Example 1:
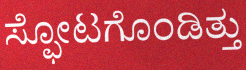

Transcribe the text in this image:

ಸ್ಫೋಟಗೊಂಡಿತ್ತು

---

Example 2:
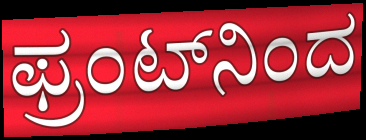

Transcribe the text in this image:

ಫ್ರಂಟ್‌ನಿಂದ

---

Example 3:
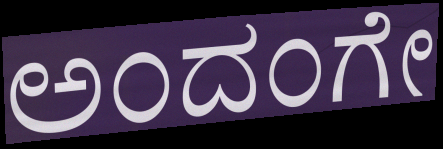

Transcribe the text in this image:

ಅಂದಂಗೇ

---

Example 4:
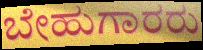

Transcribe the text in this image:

ಬೇಹುಗಾರರು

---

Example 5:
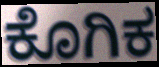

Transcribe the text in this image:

ಕೊಗಿಕ